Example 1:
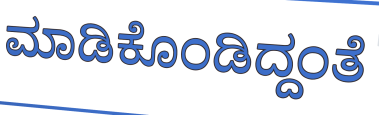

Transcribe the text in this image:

ಮಾಡಿಕೊಂಡಿದ್ದಂತೆ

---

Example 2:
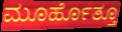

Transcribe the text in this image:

ಮೂರ್ಹೊತ್ತೂ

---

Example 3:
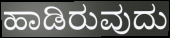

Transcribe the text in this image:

ಹಾಡಿರುವುದು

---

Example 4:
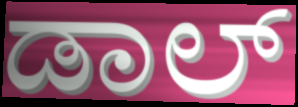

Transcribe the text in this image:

ಡಾಲ್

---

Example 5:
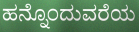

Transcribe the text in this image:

ಹನ್ನೊಂದುವರೆಯ